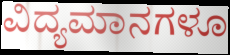
ವಿದ್ಯಮಾನಗಳೂ